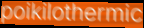
poikilothermic